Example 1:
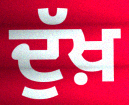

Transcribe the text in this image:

ਦੁੱਖ਼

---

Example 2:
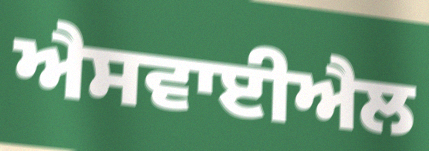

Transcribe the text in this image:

ਐਸਵਾਈਐਲ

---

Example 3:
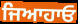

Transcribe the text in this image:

ਜਿਆਹਾਓ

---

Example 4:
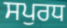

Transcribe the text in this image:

ਸਪੁਰਧ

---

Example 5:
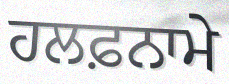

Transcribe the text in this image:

ਹਲਫ਼ਨਾਮੇ